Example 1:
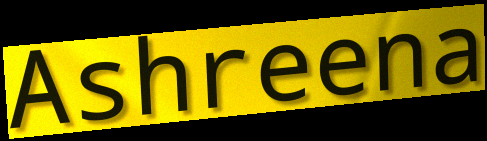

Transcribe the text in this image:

Ashreena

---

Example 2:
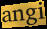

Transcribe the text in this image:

angi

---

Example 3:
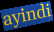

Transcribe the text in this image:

ayindi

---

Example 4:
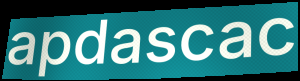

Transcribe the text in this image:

apdascac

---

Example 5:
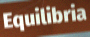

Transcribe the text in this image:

Equilibria